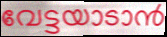
വേട്ടയാടാൻ